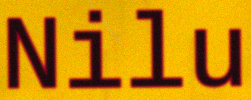
Nilu